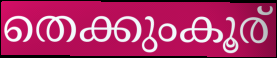
തെക്കുംകൂര്